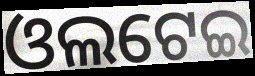
ଓଲଟେଇ